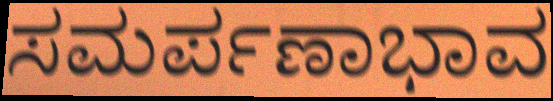
ಸಮರ್ಪಣಾಭಾವ